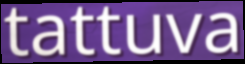
tattuva